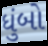
ધુંબો